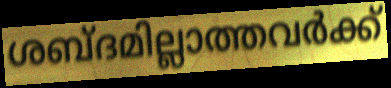
ശബ്ദമില്ലാത്തവർക്ക്